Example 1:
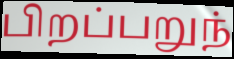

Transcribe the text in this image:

பிறப்பறுந்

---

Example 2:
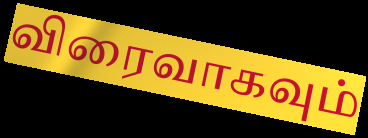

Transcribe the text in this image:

விரைவாகவும்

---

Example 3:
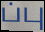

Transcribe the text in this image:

ப்பு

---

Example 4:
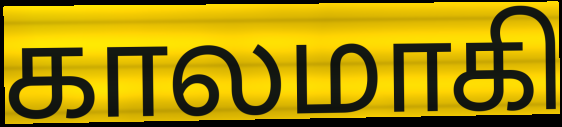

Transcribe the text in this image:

காலமாகி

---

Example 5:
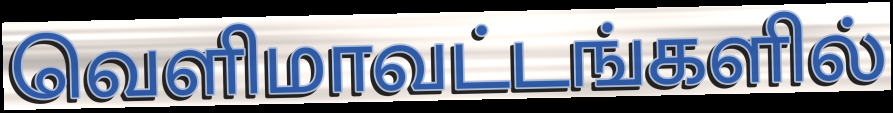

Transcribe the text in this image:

வெளிமாவட்டங்களில்